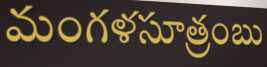
మంగళసూత్రంబు